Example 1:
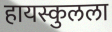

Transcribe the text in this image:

हायस्कुलला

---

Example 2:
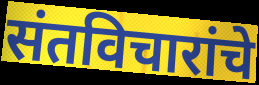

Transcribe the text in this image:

संतविचारांचे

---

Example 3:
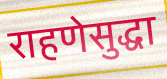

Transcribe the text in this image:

राहणेसुद्धा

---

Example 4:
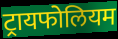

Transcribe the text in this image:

ट्रायफोलियम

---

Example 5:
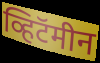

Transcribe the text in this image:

व्हिटॅमीन